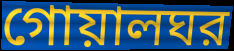
গোয়ালঘর